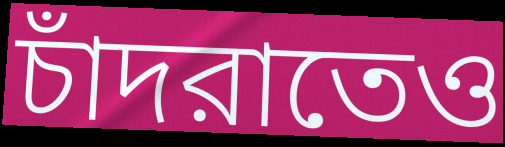
চাঁদরাতেও